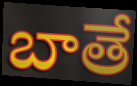
బాతే